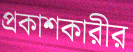
প্রকাশকারীর